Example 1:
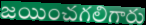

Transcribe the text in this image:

జయించగలిగారు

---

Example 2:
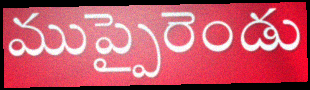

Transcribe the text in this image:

ముప్పైరెండు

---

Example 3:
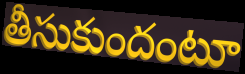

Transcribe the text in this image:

తీసుకుందంటూ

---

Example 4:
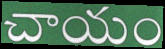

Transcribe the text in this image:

చాయం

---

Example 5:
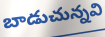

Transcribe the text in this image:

బాడుచున్నవి